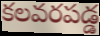
కలవరపడ్డ